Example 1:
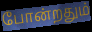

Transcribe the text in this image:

போன்றதும்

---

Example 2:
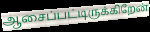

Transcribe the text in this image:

ஆசைப்பட்டிருக்கிறேன்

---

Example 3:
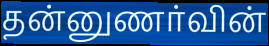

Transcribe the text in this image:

தன்னுணர்வின்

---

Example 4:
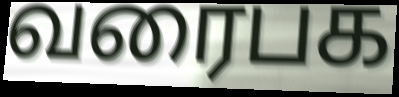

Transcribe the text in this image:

வரைபக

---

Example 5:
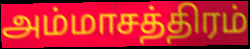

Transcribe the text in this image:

அம்மாசத்திரம்